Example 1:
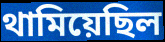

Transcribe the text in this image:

থামিয়েছিল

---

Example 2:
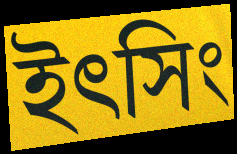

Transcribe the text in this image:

ইৎসিং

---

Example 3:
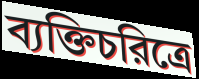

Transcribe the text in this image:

ব্যক্তিচরিত্রে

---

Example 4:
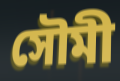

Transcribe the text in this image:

সৌমী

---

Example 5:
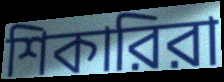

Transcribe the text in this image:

শিকারিরা